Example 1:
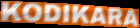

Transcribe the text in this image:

KODIKARA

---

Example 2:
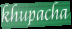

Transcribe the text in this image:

khupacha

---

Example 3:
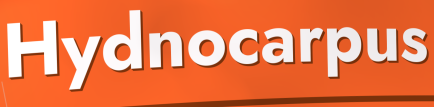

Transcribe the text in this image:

Hydnocarpus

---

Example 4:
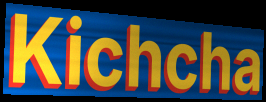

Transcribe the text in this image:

Kichcha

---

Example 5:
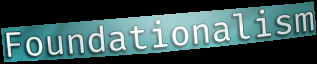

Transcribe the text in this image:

Foundationalism